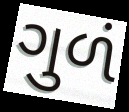
ગુળં